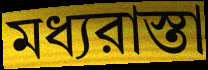
মধ্যরাস্তা